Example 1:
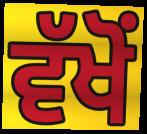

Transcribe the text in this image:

ਵੱਖੋਂ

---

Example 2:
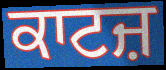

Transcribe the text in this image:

ਕਾਟਜ਼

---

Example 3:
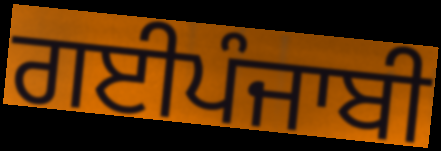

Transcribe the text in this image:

ਗਈਪੰਜਾਬੀ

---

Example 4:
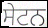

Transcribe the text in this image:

ਸੇਟਨ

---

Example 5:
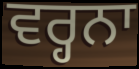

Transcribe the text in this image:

ਵਰ੍ਹਨਾ